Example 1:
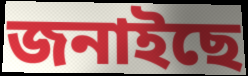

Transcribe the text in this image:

জনাইছে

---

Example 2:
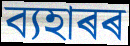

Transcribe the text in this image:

ব্যহাৰৰ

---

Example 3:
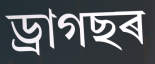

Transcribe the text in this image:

ড্ৰাগছৰ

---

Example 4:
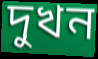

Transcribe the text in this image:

দুখন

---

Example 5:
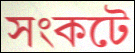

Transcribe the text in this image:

সংকটে